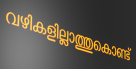
വഴികളില്ലാത്തുകൊണ്ട്